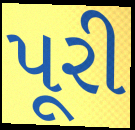
પૂરી